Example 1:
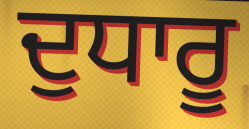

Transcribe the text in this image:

ਦੁਧਾਰੂ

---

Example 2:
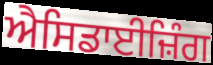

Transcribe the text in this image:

ਐਸਿਡਾਈਜ਼ਿੰਗ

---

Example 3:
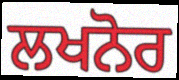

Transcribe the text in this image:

ਲਖਨੋਰ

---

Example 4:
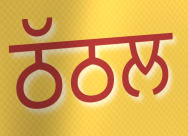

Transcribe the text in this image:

ਠੱਠਲ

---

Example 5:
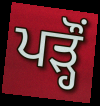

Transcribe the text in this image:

ਪੜ੍ਹੌਂ